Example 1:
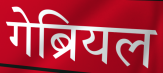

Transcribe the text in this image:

गेब्रियल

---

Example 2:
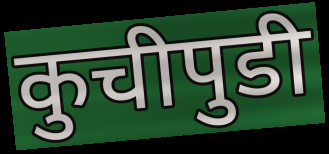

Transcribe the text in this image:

कुचीपुडी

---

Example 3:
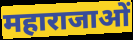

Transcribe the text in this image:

महाराजाओं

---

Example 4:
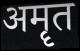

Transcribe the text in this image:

अमॄत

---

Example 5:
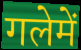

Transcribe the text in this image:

गलेमें